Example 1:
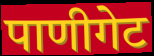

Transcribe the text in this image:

पाणीगेट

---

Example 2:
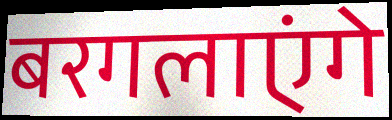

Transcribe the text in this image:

बरगलाएंगे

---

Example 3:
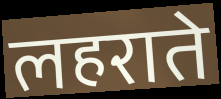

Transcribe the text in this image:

लहराते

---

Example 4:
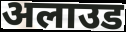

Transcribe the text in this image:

अलाउड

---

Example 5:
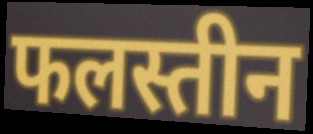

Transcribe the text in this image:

फलस्तीन